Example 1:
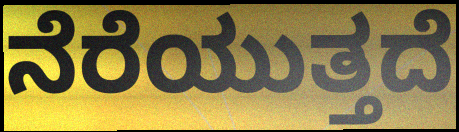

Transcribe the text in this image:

ನೆರೆಯುತ್ತದೆ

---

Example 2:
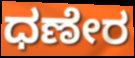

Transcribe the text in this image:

ಧಣೇರ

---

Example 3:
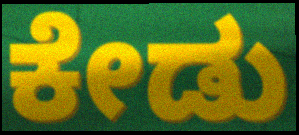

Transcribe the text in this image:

ಕೇಡು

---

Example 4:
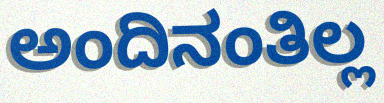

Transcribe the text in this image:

ಅಂದಿನಂತಿಲ್ಲ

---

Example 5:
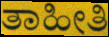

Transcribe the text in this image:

ತಾಹೀತಿ